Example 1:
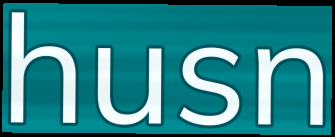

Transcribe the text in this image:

husn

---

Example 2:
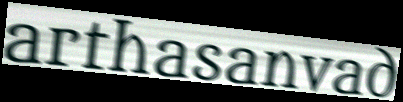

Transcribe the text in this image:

arthasanvad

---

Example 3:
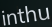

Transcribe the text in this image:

inthu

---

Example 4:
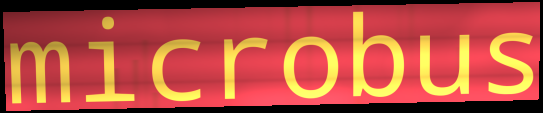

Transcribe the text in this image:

microbus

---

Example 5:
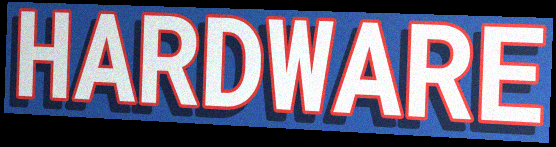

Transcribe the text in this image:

HARDWARE